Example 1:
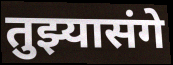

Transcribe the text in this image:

तुझ्यासंगे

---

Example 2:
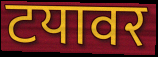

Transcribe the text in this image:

टयावर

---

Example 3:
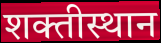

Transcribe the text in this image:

शक्तीस्थान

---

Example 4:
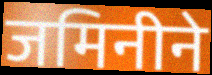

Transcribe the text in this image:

जमिनीने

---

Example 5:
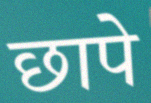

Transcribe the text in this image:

छापे